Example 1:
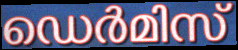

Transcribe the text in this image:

ഡെർമിസ്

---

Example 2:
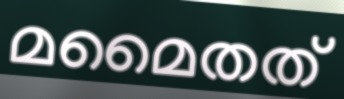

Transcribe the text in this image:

മമൈതത്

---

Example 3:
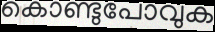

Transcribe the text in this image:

കൊണ്ടുപോവുക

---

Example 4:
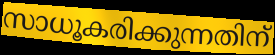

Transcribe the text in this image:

സാധൂകരിക്കുന്നതിന്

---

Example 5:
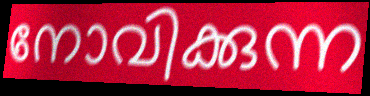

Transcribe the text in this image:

നോവിക്കുന്ന